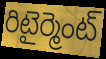
రిటైర్మెంట్